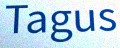
Tagus